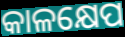
କାଳକ୍ଷେପ